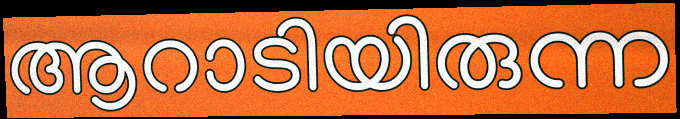
ആറാടിയിരുന്ന